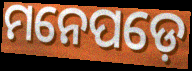
ମନେପଡ଼େ